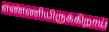
எண்ணியிருக்கிறாய்